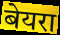
बेयरा